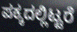
ಪಕ್ಕದಲ್ಲಿಟ್ಟರೆ